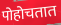
पोहोचतात